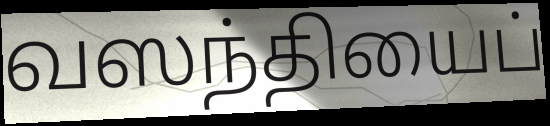
வஸந்தியைப்